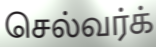
செல்வர்க்